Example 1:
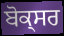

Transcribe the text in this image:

ਬੋਕ੍ਸਰ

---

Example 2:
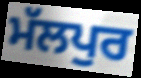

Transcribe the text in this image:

ਮੱਲਪੁਰ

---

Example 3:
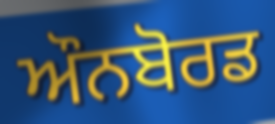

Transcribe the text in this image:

ਔਨਬੋਰਡ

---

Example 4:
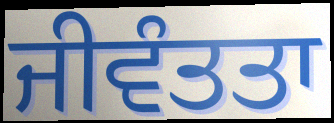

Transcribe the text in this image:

ਜੀਵੰਤਤਾ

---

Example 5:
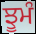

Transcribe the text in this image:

ਝੂਮੰ